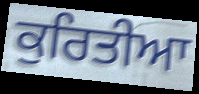
ਕੁਰਿਤੀਆ